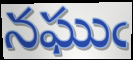
నఘుఁ